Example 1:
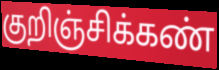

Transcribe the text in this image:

குறிஞ்சிக்கண்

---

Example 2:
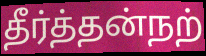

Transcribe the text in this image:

தீர்த்தன்நற்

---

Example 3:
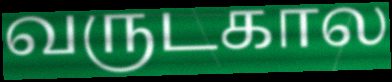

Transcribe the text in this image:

வருடகால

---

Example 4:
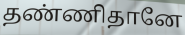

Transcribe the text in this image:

தண்ணிதானே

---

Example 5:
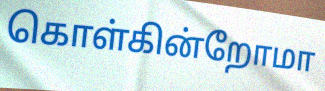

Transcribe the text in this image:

கொள்கின்றோமா